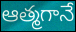
ఆత్మగానే